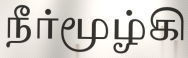
நீர்மூழ்கி